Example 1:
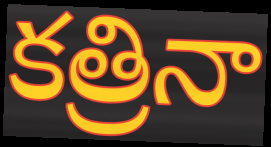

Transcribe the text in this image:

కత్రినా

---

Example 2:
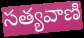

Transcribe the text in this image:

సత్యవాణి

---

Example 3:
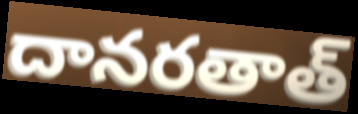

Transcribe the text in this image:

దానరతాత్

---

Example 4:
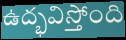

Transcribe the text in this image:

ఉద్భవిస్తోంది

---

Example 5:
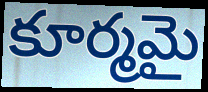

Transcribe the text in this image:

కూర్మమై